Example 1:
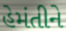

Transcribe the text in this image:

હેમંતીને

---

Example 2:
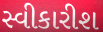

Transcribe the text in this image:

સ્વીકારીશ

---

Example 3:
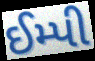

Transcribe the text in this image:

ઈમ્પી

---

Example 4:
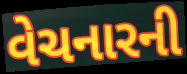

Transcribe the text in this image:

વેચનારની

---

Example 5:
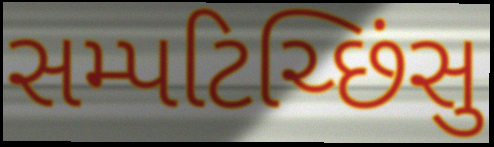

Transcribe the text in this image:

સમ્પટિચ્છિંસુ